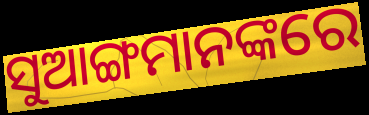
ସୁଆଙ୍ଗମାନଙ୍କରେ